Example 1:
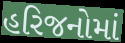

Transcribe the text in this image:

હરિજનોમાં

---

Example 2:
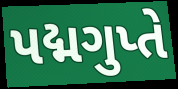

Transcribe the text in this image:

પદ્મગુપ્તે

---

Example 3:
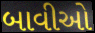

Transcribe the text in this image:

બાવીઓ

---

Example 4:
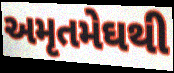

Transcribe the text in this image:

અમૃતમેઘથી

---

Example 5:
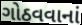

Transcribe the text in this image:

ગોઠવવાનાં